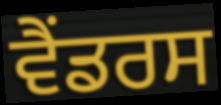
ਵੈਂਡਰਸ